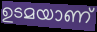
ഉടമയാണ്